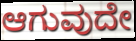
ಆಗುವುದೇ